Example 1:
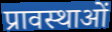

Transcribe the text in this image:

प्रावस्थाओं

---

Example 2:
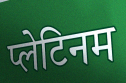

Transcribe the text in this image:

प्लेटिनम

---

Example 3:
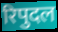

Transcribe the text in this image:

रिपुदल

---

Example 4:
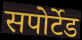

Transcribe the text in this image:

सपोर्टेड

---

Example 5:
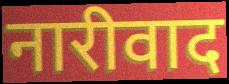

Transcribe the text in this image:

नारीवाद